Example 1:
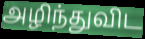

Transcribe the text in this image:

அழிந்துவிட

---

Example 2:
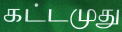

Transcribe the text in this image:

கட்டமுது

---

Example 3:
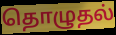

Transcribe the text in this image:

தொழுதல்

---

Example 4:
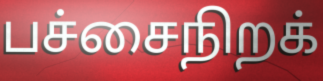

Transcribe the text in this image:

பச்சைநிறக்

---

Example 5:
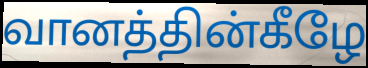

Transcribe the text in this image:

வானத்தின்கீழே